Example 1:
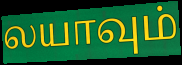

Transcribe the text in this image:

லயாவும்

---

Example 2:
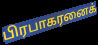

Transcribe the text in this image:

பிரபாகரனைக்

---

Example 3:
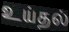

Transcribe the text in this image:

உய்தல்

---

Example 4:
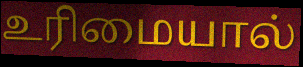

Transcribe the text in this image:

உரிமையால்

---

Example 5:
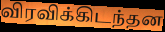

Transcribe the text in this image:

விரவிக்கிடந்தன